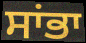
ਸਾਂਭਾ